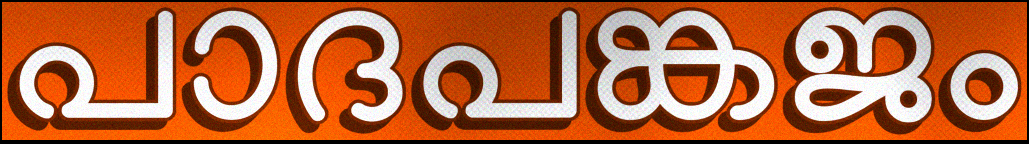
പാദപങ്കജം